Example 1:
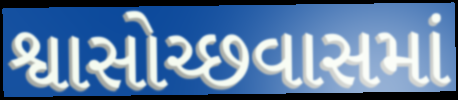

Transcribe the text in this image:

શ્વાસોચ્છવાસમાં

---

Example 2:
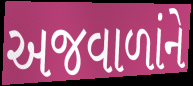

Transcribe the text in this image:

અજવાળાંને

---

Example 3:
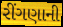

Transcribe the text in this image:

રીંગણાની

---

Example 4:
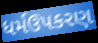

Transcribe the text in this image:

ધર્મઉપકરણ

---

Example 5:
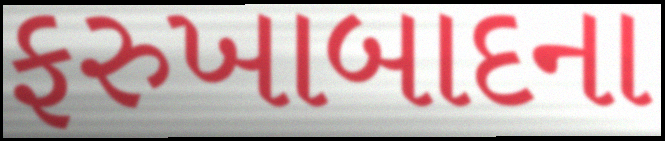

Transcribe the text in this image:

ફરુખાબાદના